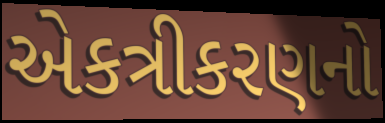
એકત્રીકરણનો